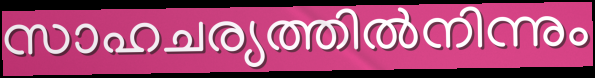
സാഹചര്യത്തിൽനിന്നും